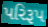
પરિરૂપ